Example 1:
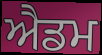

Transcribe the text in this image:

ਐਡਮ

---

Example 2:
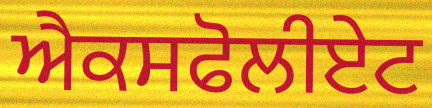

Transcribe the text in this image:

ਐਕਸਫੋਲੀਏਟ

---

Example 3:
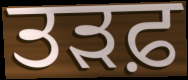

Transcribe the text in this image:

ਤੜਫ਼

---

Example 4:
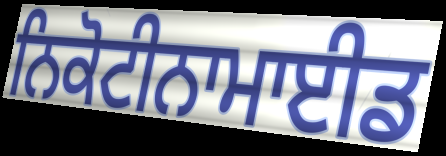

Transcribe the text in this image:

ਨਿਕੋਟੀਨਾਮਾਈਡ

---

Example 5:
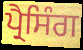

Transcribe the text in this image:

ਪ੍ਰੈਸਿੰਗ